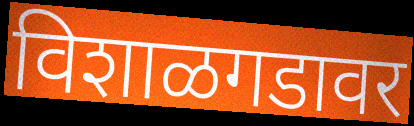
विशाळगडावर